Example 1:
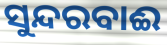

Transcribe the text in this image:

ସୁନ୍ଦରବାଈ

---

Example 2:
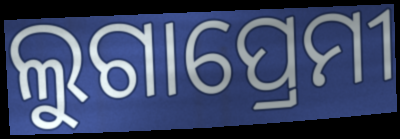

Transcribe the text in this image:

ଲୁଗାପ୍ରେମୀ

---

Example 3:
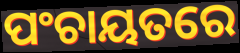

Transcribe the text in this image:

ପଂଚାୟତରେ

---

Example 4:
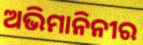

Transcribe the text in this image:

ଅଭିମାନିନୀର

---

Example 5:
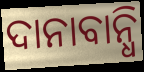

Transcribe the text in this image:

ଦାନାବାନ୍ଧି